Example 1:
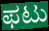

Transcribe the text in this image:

ಫಟು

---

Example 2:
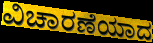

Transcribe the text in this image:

ವಿಚಾರಣೆಯಾದ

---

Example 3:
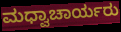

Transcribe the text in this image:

ಮಧ್ವಾಚಾರ್ಯರು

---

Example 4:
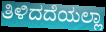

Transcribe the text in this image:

ತಿಳಿದದೆಯಲ್ಲಾ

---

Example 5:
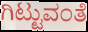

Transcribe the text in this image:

ಗಿಟ್ಟುವಂತೆ